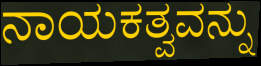
ನಾಯಕತ್ವವನ್ನು